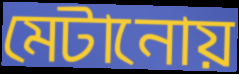
মেটানোয়